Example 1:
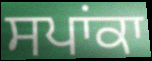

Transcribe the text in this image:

ਸਪਾਂਕਾ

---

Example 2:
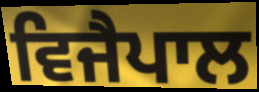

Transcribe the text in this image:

ਵਿਜੈਪਾਲ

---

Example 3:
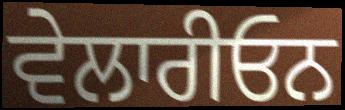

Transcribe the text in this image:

ਵੇਲਾਰੀਓਨ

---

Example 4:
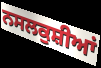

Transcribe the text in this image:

ਨਸਲਕੁਸ਼ੀਆਂ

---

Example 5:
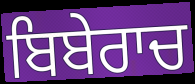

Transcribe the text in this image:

ਬਿਬੇਰਾਚ